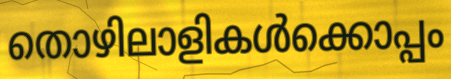
തൊഴിലാളികൾക്കൊപ്പം